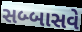
સબ્બાસવે